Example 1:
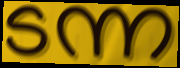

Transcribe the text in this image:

ടന്ന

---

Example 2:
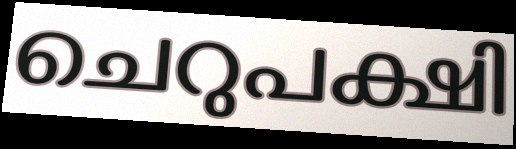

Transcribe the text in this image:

ചെറുപക്ഷി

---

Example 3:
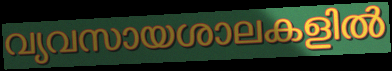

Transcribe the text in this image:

വ്യവസായശാലകളിൽ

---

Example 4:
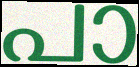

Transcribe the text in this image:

പാ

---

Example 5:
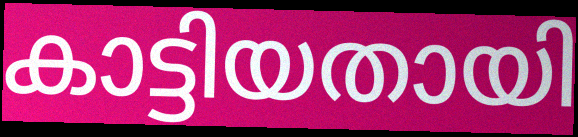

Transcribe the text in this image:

കാട്ടിയതായി